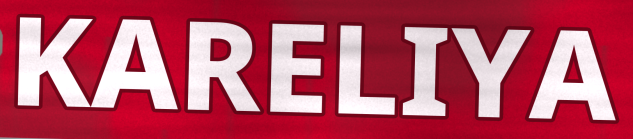
KARELIYA